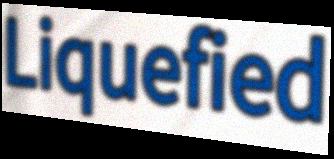
Liquefied